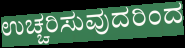
ಉಚ್ಚರಿಸುವುದರಿಂದ